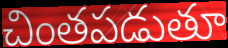
చింతపడుతూ